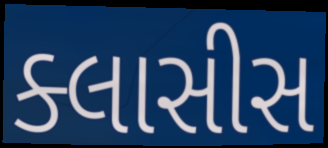
ક્લાસીસ